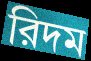
রিদম